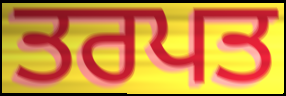
ਤਰਪਤ